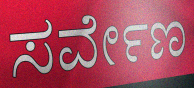
ಸರ್ವೇಣ